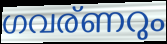
ഗവര്ണറും